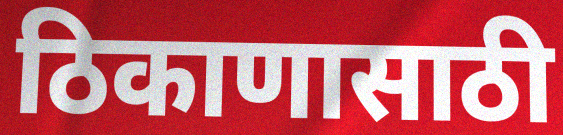
ठिकाणासाठी